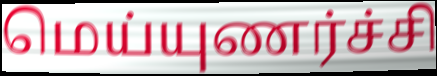
மெய்யுணர்ச்சி